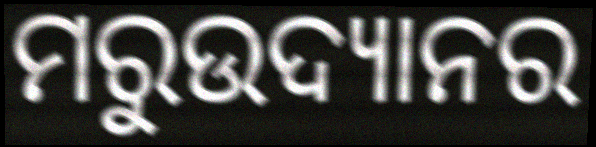
ମରୁଉଦ୍ୟାନର